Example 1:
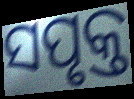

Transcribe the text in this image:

ସପୃକ୍ତ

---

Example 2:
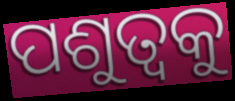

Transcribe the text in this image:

ପଶୁତ୍ୱକୁ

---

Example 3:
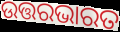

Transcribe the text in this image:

ଉତ୍ତରଭାରତ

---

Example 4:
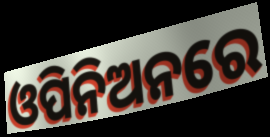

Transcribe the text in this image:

ଓପିନିଅନରେ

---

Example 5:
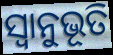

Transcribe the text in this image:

ସ୍ଵାନୁଭୂତି